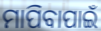
ମାପିବାପାଇଁ